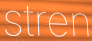
stren